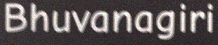
Bhuvanagiri